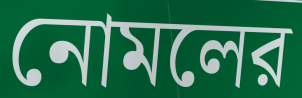
নোমলের